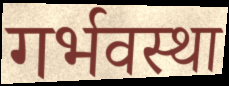
गर्भवस्था